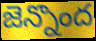
జెన్నొంద